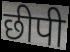
छीपी